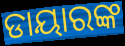
ଡାୟାରଙ୍କ